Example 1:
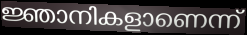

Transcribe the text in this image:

ജ്ഞാനികളാണെന്ന്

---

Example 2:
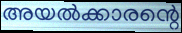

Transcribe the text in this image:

അയൽക്കാരന്റെ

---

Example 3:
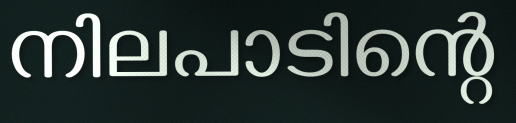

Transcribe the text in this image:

നിലപാടിന്റെ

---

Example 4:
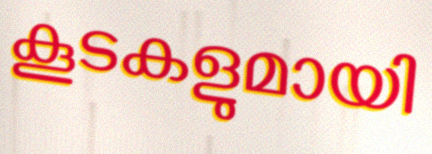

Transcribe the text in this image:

കൂടകളുമായി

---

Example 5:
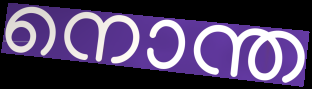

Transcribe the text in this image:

നൊന്ത